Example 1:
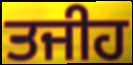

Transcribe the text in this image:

ਤਜੀਹ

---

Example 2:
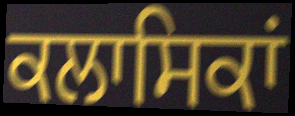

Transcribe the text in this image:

ਕਲਾਸਿਕਾਂ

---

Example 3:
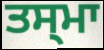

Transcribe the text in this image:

ਤਸ੍ਮਾ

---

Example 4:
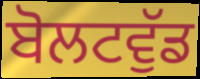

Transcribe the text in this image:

ਬੋਲਟਵੁੱਡ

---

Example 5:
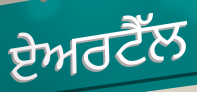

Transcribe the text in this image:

ਏਅਰਟੈੱਲ